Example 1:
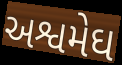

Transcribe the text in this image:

અશ્વમેઘ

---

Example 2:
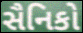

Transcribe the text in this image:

સૈનિકો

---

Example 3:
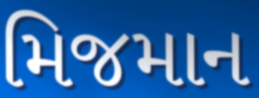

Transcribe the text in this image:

મિજમાન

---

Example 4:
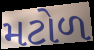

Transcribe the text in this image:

મટોળ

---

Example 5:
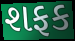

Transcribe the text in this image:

શફક